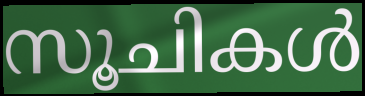
സൂചികൾ